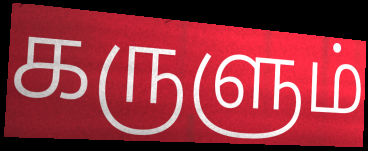
கருளும்